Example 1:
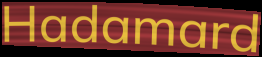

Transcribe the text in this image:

Hadamard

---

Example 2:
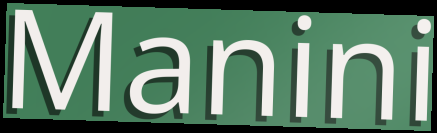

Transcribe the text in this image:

Manini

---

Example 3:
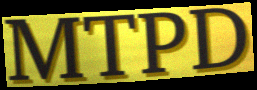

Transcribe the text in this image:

MTPD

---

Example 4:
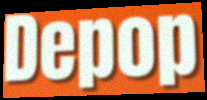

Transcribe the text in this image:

Depop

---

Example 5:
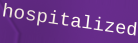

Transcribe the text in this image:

hospitalized